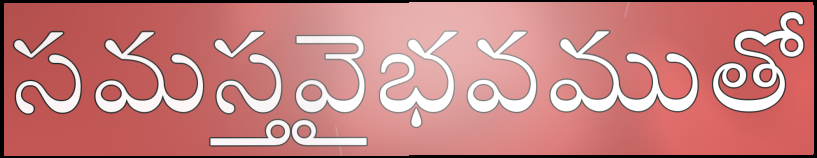
సమస్తవైభవముతో